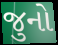
જુનો